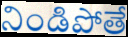
నిండిపోతే